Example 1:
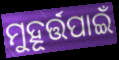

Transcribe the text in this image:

ମୁହୂର୍ତ୍ତପାଇଁ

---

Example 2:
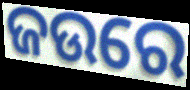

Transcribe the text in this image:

ଜଉରେ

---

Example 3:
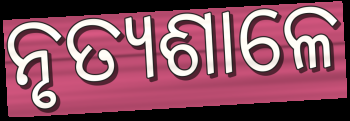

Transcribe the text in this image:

ନୃତ୍ୟଶାଳେ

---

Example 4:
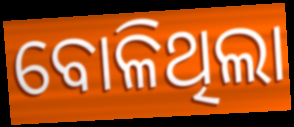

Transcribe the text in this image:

ବୋଳିଥିଲା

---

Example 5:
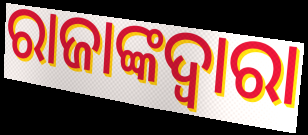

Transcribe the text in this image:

ରାଜାଙ୍କଦ୍ଵାରା